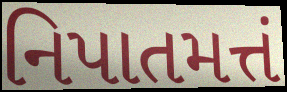
નિપાતમત્તં